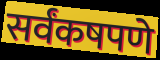
सर्वंकषपणे